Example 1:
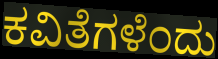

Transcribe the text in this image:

ಕವಿತೆಗಳೆಂದು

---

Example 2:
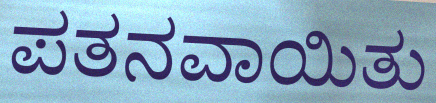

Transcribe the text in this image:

ಪತನವಾಯಿತು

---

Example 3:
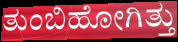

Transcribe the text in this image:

ತುಂಬಿಹೋಗಿತ್ತು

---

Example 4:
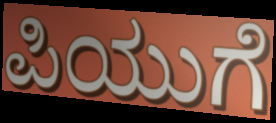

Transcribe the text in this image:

ಪಿಯುಗೆ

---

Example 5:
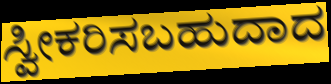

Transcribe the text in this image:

ಸ್ವೀಕರಿಸಬಹುದಾದ